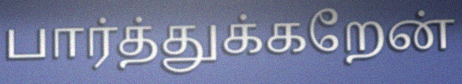
பார்த்துக்கறேன்